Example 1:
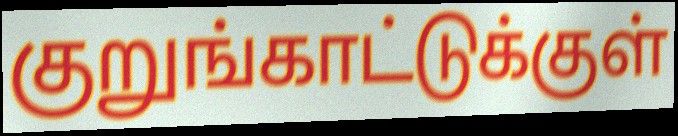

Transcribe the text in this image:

குறுங்காட்டுக்குள்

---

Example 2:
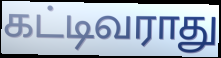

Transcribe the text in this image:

கட்டிவராது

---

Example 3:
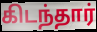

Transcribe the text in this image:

கிடந்தார்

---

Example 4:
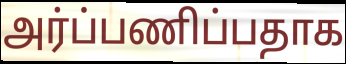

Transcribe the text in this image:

அர்ப்பணிப்பதாக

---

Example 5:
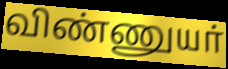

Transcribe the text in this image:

விண்ணுயர்